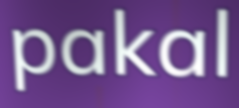
pakal